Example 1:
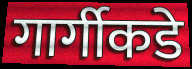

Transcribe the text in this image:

गार्गीकडे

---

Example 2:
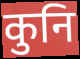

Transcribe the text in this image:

कुनि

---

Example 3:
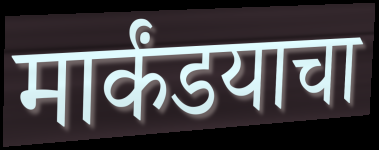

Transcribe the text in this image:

मार्कंडयाचा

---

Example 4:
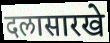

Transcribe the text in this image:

दलासारखे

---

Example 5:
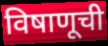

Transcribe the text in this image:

विषाणूची